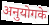
अनुयोगके